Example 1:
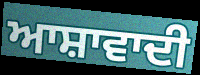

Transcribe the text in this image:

ਆਸ਼ਾਵਾਦੀ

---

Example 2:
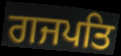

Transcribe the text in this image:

ਗਜਪਤਿ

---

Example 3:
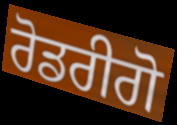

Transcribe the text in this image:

ਰੋਡਰੀਗੋ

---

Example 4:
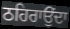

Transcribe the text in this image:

ਠਹਿਰਾਉਂਦਾ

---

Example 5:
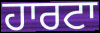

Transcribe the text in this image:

ਹਾਰਟਾ